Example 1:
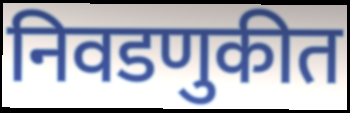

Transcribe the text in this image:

निवडणुकीत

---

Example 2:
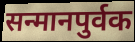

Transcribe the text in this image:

सन्मानपुर्वक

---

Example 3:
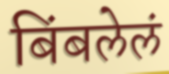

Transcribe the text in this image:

बिंबलेलं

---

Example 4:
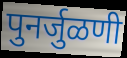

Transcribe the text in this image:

पुनर्जुळणी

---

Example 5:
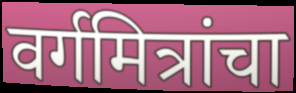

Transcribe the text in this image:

वर्गमित्रांचा